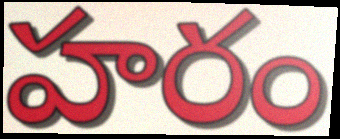
హరం